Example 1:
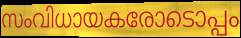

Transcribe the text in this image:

സംവിധായകരോടൊപ്പം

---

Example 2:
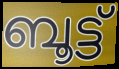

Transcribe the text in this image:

ബൂട്ട്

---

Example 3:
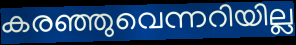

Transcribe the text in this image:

കരഞ്ഞുവെന്നറിയില്ല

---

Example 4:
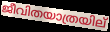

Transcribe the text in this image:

ജീവിതയാത്രയില്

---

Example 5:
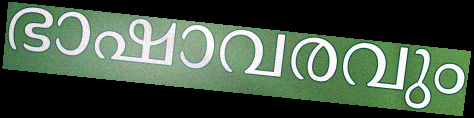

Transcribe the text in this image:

ഭാഷാവരവും